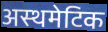
अस्थमेटिक